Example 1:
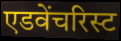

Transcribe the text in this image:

एडवेंचरिस्ट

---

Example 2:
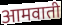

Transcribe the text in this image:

आमवाती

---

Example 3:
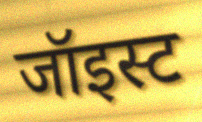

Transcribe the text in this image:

जॉइस्ट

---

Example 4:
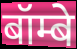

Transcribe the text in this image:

बॉम्‍बे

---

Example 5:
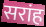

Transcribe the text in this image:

सरांह